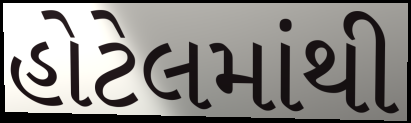
હોટેલમાંથી